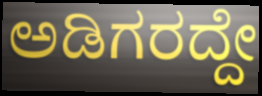
ಅಡಿಗರದ್ದೇ